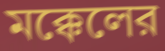
মক্কেলের